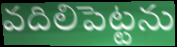
వదిలిపెట్టను